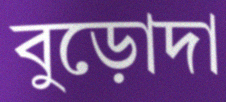
বুড়োদা